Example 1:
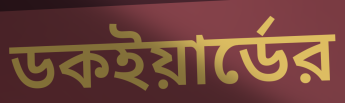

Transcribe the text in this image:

ডকইয়ার্ডের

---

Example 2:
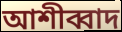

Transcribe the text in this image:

আশীব্বাদ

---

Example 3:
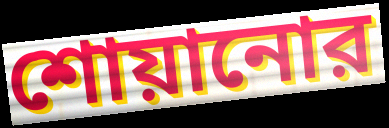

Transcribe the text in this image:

শোয়ানোর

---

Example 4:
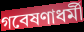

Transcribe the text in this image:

গবেষণাধর্মী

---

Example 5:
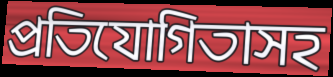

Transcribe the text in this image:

প্রতিযোগিতাসহ